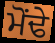
ਮੋਂਢੇ